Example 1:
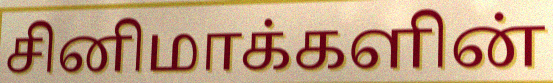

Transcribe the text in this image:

சினிமாக்களின்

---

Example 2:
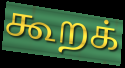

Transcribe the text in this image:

கூறக்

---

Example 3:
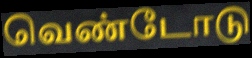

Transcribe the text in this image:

வெண்டோடு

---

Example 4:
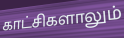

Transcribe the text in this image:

காட்சிகளாலும்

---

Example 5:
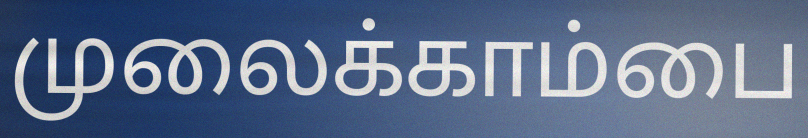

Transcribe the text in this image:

முலைக்காம்பை